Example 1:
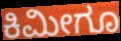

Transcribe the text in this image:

ಕಿಮೀಗೂ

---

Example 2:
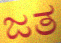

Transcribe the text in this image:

ಜತ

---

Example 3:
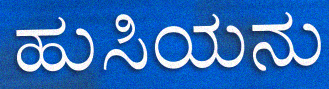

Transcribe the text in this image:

ಹುಸಿಯನು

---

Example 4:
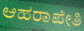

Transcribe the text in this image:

ಆಹರಾಪೇತಿ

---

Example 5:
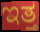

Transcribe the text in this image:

ಇತ್ತ